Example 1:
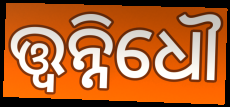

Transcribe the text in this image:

ତ୍ତ୍ଵନ୍ନିଧୌ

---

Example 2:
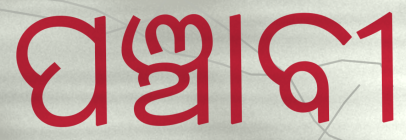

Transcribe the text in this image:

ପଞ୍ଚାବୀ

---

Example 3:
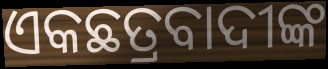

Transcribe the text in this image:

ଏକଛତ୍ରବାଦୀଙ୍କ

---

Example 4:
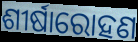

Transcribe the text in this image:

ଶୀର୍ଷାରୋହଣ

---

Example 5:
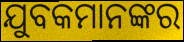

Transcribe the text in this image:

ଯୁବକମାନଙ୍କର